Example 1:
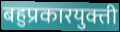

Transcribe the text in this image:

बहुप्रकारयुक्ती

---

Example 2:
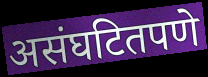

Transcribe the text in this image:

असंघटितपणे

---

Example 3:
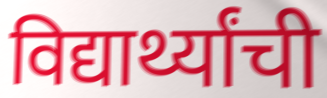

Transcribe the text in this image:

विद्यार्थ्यांची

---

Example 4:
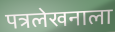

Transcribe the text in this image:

पत्रलेखनाला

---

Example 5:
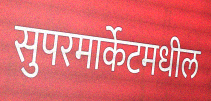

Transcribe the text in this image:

सुपरमार्केटमधील